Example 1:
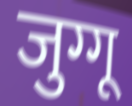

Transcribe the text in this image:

जुग्गू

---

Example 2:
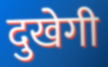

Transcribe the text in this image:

दुखेगी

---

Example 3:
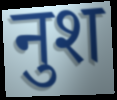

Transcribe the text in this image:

नुश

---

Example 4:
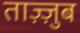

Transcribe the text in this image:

ताज़्ज़ुब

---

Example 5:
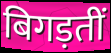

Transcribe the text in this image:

बिगड़तीं